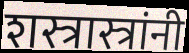
शस्त्रास्त्रांनी